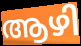
ആഴി